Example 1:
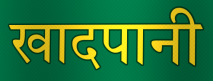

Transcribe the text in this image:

खादपानी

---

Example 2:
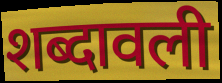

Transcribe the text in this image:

शब्दावली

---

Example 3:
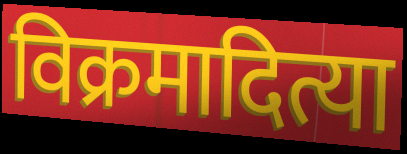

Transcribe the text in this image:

विक्रमादित्या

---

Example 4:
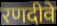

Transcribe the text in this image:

रणदीवे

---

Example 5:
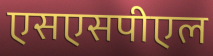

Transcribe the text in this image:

एसएसपीएल